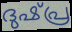
ദുഷ്‌പ്ര